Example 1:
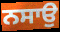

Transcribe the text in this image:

ਨਸਾਉ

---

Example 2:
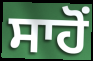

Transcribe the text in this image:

ਸਾਹੋਂ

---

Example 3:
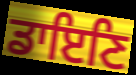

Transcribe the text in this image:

ਡਾਇਣਿ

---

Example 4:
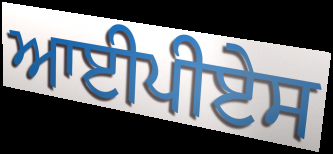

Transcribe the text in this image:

ਆਈਪੀਏਸ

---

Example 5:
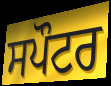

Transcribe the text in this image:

ਸਪੌਟਰ